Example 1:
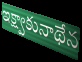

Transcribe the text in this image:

ఇక్ష్వాకునాథేన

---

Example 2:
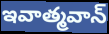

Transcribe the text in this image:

ఇవాత్మవాన్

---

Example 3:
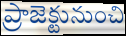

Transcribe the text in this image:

ప్రాజెక్టునుంచి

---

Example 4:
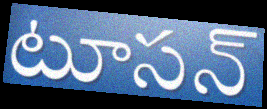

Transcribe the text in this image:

టూసన్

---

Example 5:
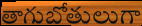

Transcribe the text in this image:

తాగుబోతులుగా